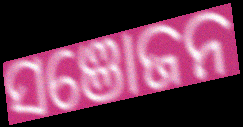
ସଞୋଜନ